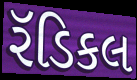
રૅડિકલ